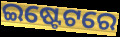
ଇଷ୍ଟେଟରେ